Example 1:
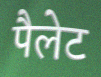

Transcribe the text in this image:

पैलेट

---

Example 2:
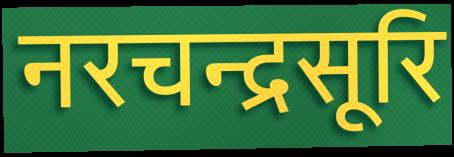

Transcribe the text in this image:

नरचन्द्रसूरि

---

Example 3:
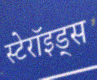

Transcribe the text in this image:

स्टेरॉइड्स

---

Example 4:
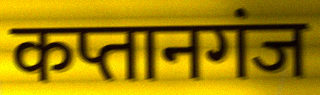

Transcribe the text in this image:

कप्तानगंज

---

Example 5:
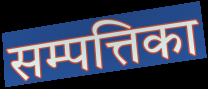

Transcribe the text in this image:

सम्पत्तिका